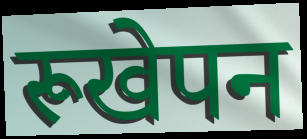
रूखेपन